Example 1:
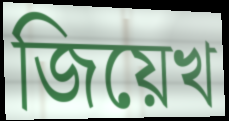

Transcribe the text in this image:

জিয়েখ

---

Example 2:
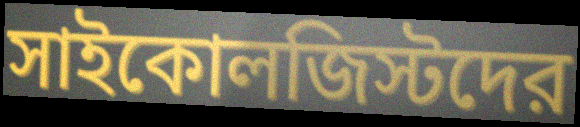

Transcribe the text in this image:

সাইকোলজিস্টদের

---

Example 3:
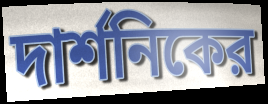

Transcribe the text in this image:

দার্শনিকের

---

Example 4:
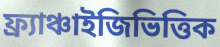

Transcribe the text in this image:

ফ্র্যাঞ্চাইজিভিত্তিক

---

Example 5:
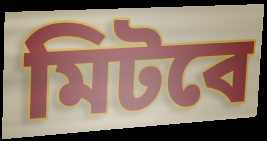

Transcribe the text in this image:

মিটবে